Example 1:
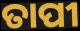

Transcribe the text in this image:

ତାପୀ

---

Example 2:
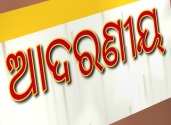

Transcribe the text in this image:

ଆଦରଣୀୟ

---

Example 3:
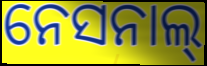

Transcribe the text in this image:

ନେସନାଲ୍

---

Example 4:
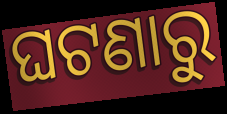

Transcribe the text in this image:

ଘଟଣାରୁ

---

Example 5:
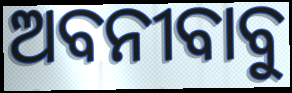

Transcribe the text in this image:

ଅବନୀବାବୁ